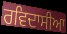
ਰਵਿਦਾਸੀਆ